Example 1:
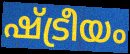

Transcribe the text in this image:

ഷ്ട്രീയം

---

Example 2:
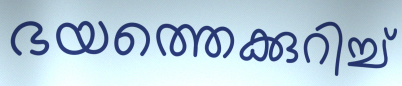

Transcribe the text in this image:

ഭയത്തെക്കുറിച്ച്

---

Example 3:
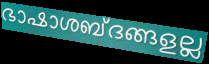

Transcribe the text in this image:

ഭാഷാശബ്ദങ്ങളല്ല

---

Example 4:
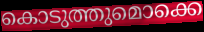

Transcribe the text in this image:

കൊടുത്തുമൊക്കെ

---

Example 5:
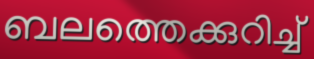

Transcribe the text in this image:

ബലത്തെക്കുറിച്ച്